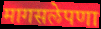
मागसलेपणा